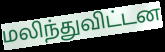
மலிந்துவிட்டன